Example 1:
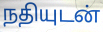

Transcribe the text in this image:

நதியுடன்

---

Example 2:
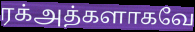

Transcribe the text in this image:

ரக்அத்களாகவே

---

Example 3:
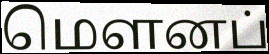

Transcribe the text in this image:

மெளனப்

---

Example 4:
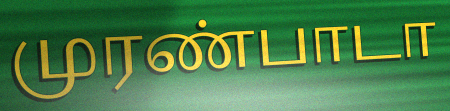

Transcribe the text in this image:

முரண்பாடா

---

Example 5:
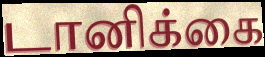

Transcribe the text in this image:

டானிக்கை